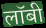
लॉबी